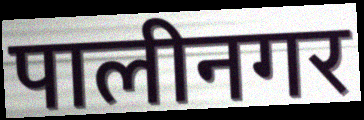
पालीनगर